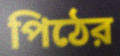
পিঠের